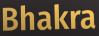
Bhakra